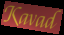
Kavad